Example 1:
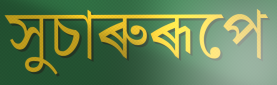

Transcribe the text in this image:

সুচাৰুৰূপে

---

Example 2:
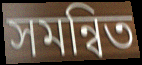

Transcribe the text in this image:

সমন্বিত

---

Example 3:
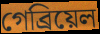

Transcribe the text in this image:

গেব্ৰিয়েল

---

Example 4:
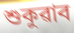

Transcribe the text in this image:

শুকুৱাব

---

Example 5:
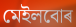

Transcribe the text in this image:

মেইলবোৰ